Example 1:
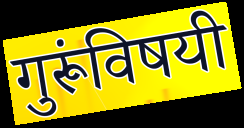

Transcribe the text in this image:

गुरूंविषयी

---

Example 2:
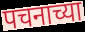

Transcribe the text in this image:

पचनाच्या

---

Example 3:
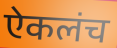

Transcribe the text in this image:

ऐकलंच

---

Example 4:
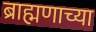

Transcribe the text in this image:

ब्राह्मणाच्या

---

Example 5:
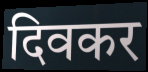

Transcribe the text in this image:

दिवकर